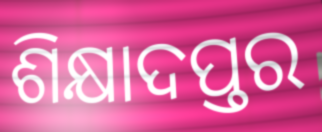
ଶିକ୍ଷାଦପ୍ତର